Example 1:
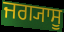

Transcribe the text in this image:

ਜਗ੍ਯਾਸੂ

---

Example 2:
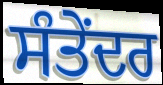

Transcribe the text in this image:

ਸੰਤੇਂਦਰ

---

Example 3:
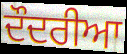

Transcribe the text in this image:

ਦੌਦਰੀਆ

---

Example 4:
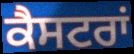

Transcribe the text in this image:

ਕੈਸਟਰਾਂ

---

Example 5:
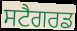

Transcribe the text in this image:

ਸਟੈਗਰਡ